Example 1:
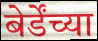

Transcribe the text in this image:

बेर्डेंच्या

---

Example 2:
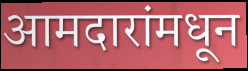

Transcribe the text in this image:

आमदारांमधून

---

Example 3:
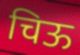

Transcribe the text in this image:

चिऊ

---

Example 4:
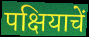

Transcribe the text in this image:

पक्षियाचें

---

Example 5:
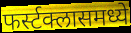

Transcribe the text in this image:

फर्स्टक्लासमध्ये